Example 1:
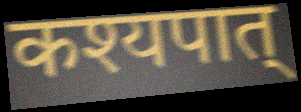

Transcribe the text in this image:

कश्यपात्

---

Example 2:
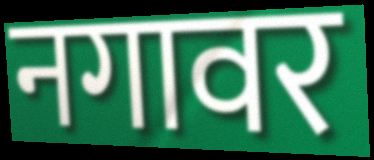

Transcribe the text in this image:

नगावर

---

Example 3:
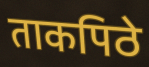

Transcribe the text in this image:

ताकपिठे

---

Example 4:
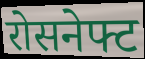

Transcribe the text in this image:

रोसनेफ्ट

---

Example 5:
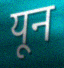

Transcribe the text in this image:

यून